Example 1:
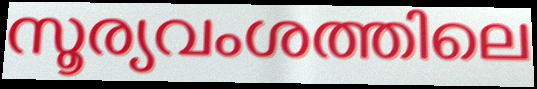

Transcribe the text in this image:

സൂര്യവംശത്തിലെ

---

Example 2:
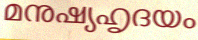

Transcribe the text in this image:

മനുഷ്യഹൃദയം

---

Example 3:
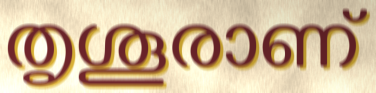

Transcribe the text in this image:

തൃശൂരാണ്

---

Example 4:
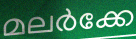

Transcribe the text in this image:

മലർക്കേ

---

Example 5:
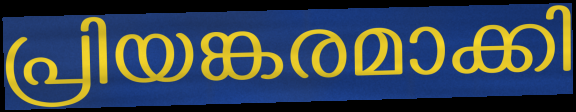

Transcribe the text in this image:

പ്രിയങ്കരമാക്കി